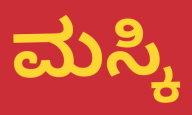
ಮಸ್ಕಿ